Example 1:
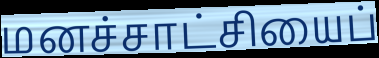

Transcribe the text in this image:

மனச்சாட்சியைப்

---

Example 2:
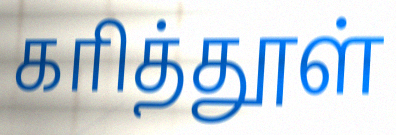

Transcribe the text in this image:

கரித்தூள்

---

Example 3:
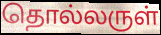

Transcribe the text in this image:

தொல்லருள்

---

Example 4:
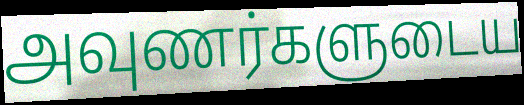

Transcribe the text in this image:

அவுணர்களுடைய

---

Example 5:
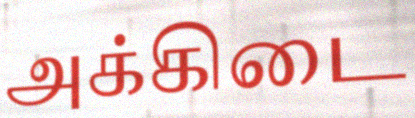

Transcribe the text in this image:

அக்கிடை